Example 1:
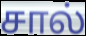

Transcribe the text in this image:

சால்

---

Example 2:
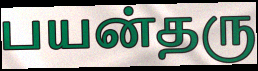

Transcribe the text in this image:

பயன்தரு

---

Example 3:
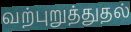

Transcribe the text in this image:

வற்புறுத்துதல்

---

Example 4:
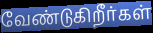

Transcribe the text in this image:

வேண்டுகிறீர்கள்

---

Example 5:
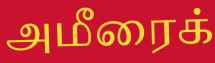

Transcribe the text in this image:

அமீரைக்